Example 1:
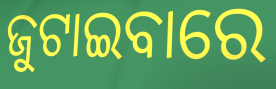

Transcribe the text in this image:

ଜୁଟାଇବାରେ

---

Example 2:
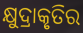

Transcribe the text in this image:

କ୍ଷୁଦ୍ରାକୃତିର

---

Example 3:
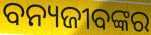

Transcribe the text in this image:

ବନ୍ୟଜୀବଙ୍କର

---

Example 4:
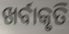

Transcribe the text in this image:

ଖର୍ବାକୃତି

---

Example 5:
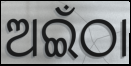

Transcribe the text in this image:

ଅଇଁଠା